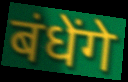
बंधेंगे